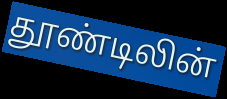
தூண்டிலின்